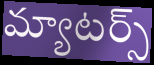
మ్యాటర్స్